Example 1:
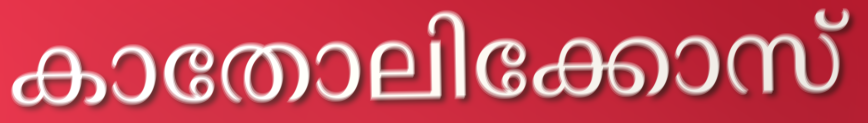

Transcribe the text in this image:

കാതോലിക്കോസ്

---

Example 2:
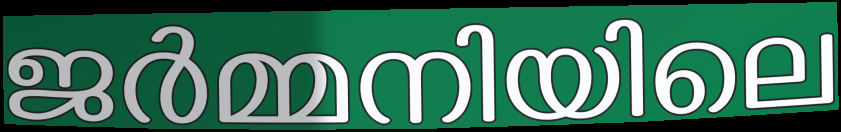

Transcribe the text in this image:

ജർമ്മനിയിലെ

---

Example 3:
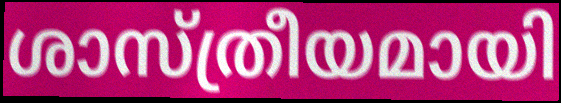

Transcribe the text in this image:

ശാസ്ത്രീയമായി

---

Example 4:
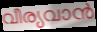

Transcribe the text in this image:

വീര്യവാൻ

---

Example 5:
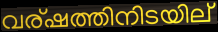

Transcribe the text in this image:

വര്ഷത്തിനിടയില്